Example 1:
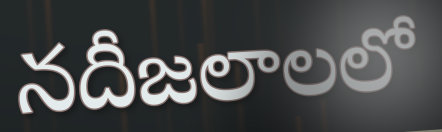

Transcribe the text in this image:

నదీజలాలలో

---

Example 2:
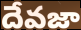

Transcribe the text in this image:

దేవజా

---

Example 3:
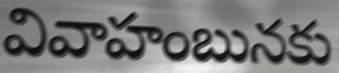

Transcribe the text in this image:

వివాహంబునకు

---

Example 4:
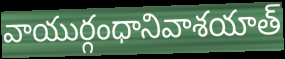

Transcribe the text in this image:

వాయుర్గంధానివాశయాత్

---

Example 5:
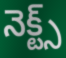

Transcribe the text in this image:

నెక్ట్స్